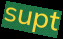
supt